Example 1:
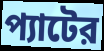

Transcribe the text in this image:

প্যাটের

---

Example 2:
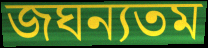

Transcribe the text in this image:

জঘন্যতম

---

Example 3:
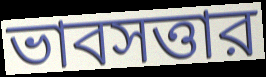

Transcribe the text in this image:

ভাবসত্তার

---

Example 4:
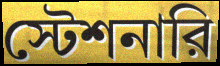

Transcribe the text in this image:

স্টেশনারি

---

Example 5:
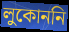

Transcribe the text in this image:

লুকোননি